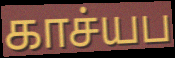
காச்யப